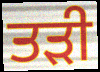
ਤੜੀ